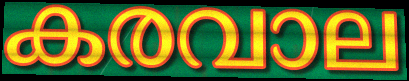
കരവാല